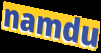
namdu